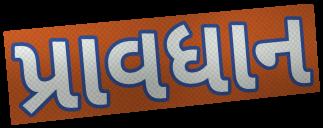
પ્રાવધાન